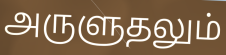
அருளுதலும்